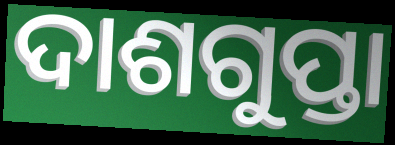
ଦାଶଗୁପ୍ତା